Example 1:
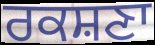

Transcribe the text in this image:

ਰਕਸ਼ਣਾ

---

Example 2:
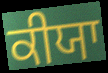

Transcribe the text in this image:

ਕੀਯਾ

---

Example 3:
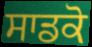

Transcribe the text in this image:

ਸਾਡਕੋ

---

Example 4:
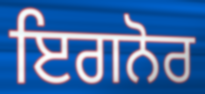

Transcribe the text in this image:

ਇਗਨੋਰ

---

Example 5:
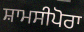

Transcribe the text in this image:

ਸ਼ਾਮਸੀਪੋਰਾ